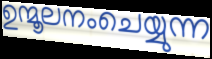
ഉന്മൂലനംചെയ്യുന്ന